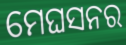
ମେଘସନର